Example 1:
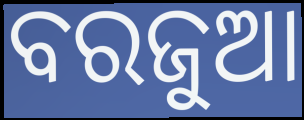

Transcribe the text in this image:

ବରଜୁଆ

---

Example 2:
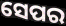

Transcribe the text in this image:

ସେପର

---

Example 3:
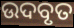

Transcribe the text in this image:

ଉଦବୃତ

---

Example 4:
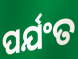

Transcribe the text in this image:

ପର୍ଯଂତ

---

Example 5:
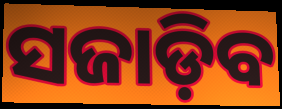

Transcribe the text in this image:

ସଜାଡ଼ିବ